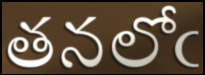
తనలోఁ